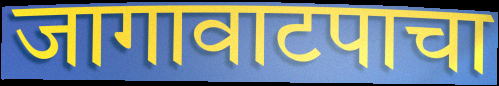
जागावाटपाचा